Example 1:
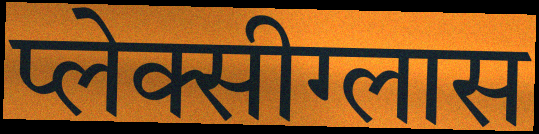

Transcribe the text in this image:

प्लेक्सीग्लास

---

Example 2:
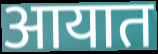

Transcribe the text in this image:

आयात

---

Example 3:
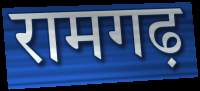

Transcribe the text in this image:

रामगढ़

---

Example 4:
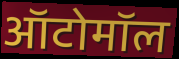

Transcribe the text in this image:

ऑटोमॉल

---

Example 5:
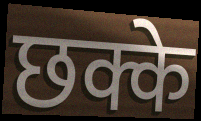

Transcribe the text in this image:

छक्के